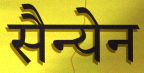
सैन्येन